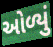
ઓળ્યું